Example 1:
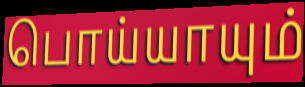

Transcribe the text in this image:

பொய்யாயும்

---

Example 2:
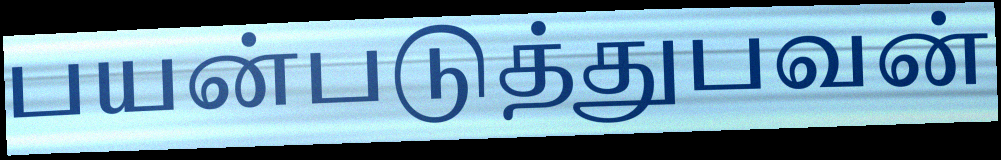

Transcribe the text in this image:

பயன்படுத்துபவன்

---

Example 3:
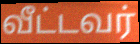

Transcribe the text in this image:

வீட்டவர்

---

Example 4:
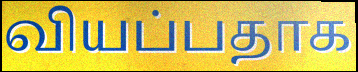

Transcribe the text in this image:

வியப்பதாக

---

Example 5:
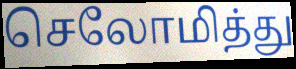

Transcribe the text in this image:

செலோமித்து